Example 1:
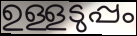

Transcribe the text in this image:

ഉള്ളടുപ്പം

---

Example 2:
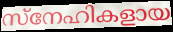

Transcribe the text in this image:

സ്നേഹികളായ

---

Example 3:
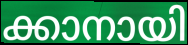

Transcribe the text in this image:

ക്കാനായി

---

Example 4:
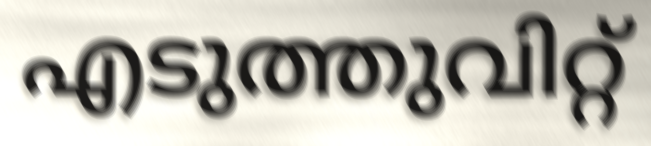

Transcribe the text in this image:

എടുത്തുവിറ്റ്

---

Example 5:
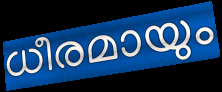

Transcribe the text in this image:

ധീരമായും